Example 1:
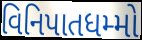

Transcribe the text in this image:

વિનિપાતધમ્મો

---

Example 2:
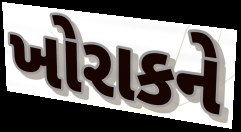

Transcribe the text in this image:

ખોરાકને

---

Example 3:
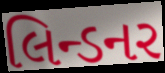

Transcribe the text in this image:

લિન્ડનર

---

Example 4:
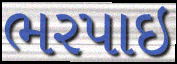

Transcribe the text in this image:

ભરપાઇ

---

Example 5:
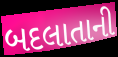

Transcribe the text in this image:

બદલાતાની